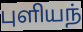
புளியந்